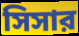
সিসার